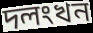
দলংখন